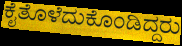
ಕೈತೊಳೆದುಕೊಂಡಿದ್ದರು